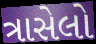
ત્રાસેલો